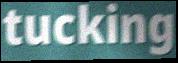
tucking